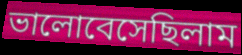
ভালোবেসেছিলাম